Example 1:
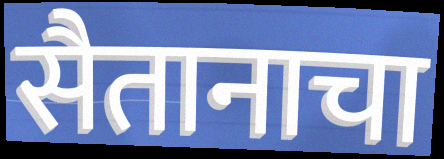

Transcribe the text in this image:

सैतानाचा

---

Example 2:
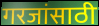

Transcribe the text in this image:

गरजांसाठी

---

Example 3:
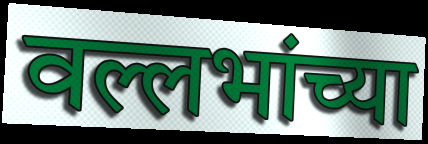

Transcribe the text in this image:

वल्लभांच्या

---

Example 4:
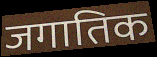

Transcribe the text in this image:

जगातिक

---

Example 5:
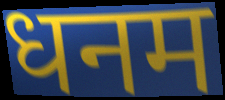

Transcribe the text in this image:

धनम